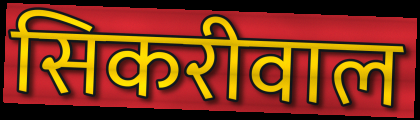
सिकरीवाल